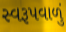
સ્વરૂપવાળું